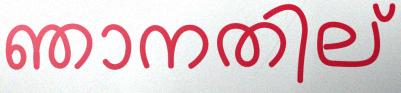
ഞാനതില്